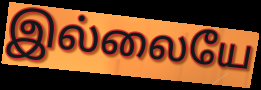
இல்லையே